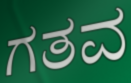
ಗತವ